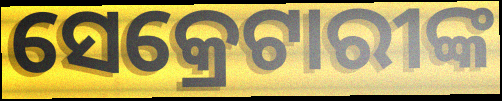
ସେକ୍ରେଟାରୀଙ୍କ